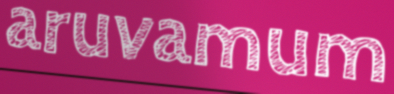
aruvamum